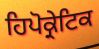
ਹਿਪੋਕ੍ਰੇਟਿਕ